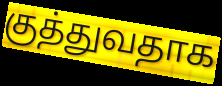
குத்துவதாக